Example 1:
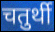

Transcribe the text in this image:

चतुर्थी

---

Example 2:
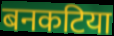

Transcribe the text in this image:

बनकटिया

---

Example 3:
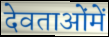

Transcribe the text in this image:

देवताओंमें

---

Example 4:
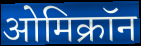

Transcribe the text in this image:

ओमिक्रॉन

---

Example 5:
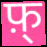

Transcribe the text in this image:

फ़्